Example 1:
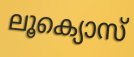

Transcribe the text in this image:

ലൂക്യൊസ്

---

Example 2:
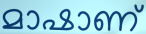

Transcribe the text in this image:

മാഷാണ്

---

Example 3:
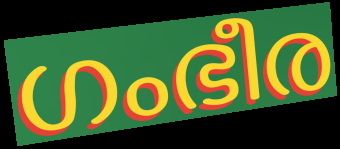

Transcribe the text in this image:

ഗംഭീര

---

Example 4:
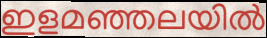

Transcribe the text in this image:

ഇളമഞ്ഞലയിൽ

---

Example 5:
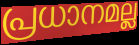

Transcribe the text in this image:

പ്രധാനമല്ല